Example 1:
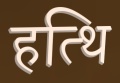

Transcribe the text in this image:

हत्थि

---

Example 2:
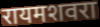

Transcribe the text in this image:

रायमशवरा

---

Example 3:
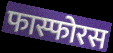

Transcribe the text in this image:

फास्‍फोरस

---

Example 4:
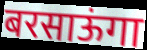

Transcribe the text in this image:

बरसाऊंगा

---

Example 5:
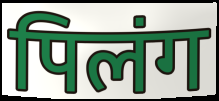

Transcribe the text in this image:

पिलंग